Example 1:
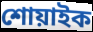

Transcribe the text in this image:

শোয়াইক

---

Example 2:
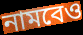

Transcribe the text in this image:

নামবেও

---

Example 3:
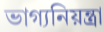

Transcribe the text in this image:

ভাগ্যনিয়ন্ত্রা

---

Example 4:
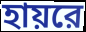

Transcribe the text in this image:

হায়রে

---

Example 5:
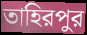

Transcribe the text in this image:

তাহিরপুর